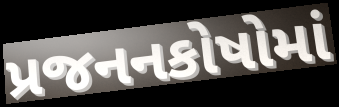
પ્રજનનકોષોમાં